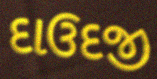
દાઉદજી